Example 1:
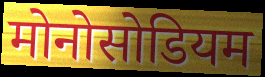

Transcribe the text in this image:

मोनोसोडियम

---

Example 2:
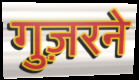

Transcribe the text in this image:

गुज़रने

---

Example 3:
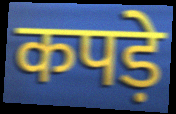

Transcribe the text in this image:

कपड़े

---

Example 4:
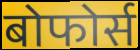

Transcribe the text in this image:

बोफोर्स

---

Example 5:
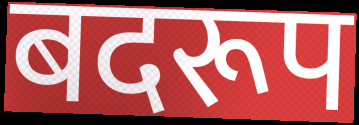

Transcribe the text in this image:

बदरूप